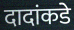
दादांकडे